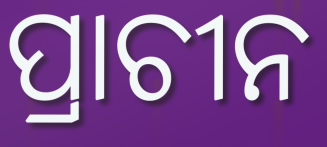
ପ୍ରାଚୀନ